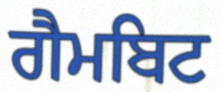
ਗੈਮਬਿਟ